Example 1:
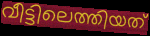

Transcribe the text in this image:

വീട്ടിലെത്തിയത്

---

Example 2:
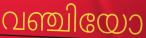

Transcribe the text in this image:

വഞ്ചിയോ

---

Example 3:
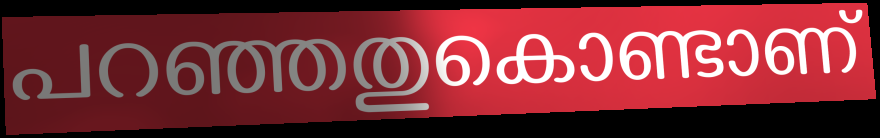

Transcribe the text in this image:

പറഞ്ഞതുകൊണ്ടാണ്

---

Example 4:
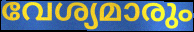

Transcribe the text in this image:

വേശ്യമാരും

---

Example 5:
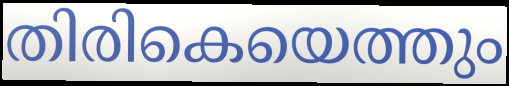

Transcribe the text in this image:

തിരികെയെത്തും